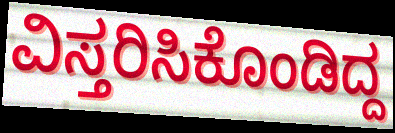
ವಿಸ್ತರಿಸಿಕೊಂಡಿದ್ದ